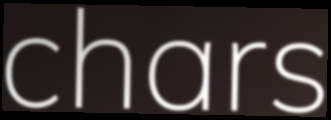
chars